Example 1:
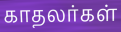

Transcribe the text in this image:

காதலர்கள்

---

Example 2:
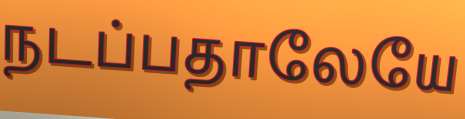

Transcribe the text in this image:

நடப்பதாலேயே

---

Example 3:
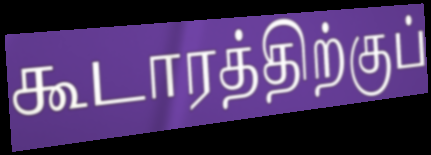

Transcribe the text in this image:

கூடாரத்திற்குப்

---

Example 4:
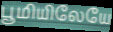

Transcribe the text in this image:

பூமியிலேயே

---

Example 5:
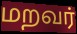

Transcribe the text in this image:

மறவர்